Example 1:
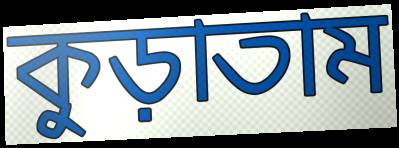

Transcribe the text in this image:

কুড়াতাম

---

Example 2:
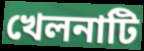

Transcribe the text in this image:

খেলনাটি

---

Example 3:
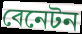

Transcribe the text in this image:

বেনেটন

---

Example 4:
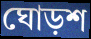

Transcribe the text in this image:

ঘোড়শ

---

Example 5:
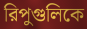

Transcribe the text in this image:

রিপুগুলিকে